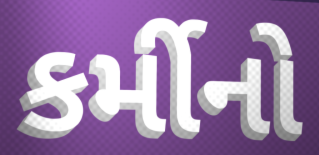
કર્મીનો